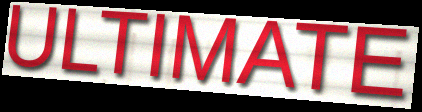
ULTIMATE